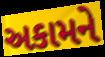
અકામને